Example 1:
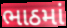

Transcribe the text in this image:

ભાઠમાં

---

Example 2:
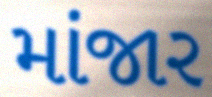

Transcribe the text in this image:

માંજાર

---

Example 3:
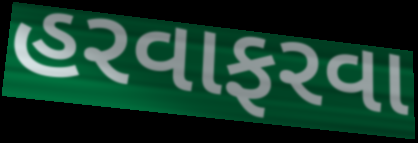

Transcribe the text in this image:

હરવાફરવા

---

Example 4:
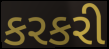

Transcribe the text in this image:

કરકરી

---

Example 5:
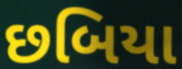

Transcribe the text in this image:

છબિયા